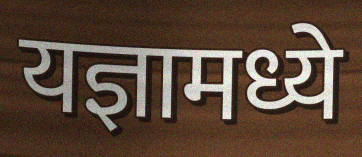
यज्ञामध्ये